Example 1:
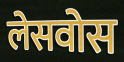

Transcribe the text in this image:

लेसवोस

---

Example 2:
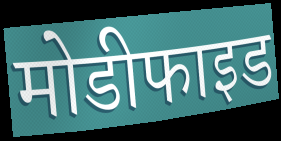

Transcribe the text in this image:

मोडीफाइड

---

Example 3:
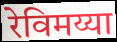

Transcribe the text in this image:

रेविमय्या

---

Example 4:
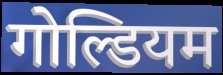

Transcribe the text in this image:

गोल्डियम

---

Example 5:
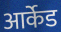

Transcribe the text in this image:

आर्केड